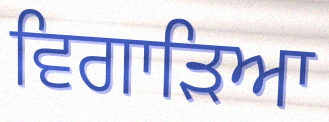
ਵਿਗਾੜਿਆ